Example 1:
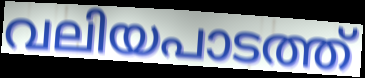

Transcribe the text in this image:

വലിയപാടത്ത്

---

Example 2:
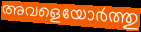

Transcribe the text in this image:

അവളെയോർത്തു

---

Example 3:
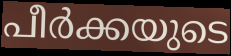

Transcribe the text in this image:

പീർക്കയുടെ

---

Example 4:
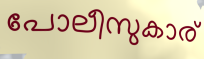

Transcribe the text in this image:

പോലീസുകാര്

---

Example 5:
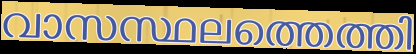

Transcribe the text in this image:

വാസസ്ഥലത്തെത്തി